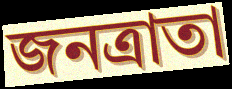
জনত্রাতা